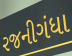
રજનીગંધા